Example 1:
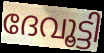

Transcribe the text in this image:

ദേവൂട്ടി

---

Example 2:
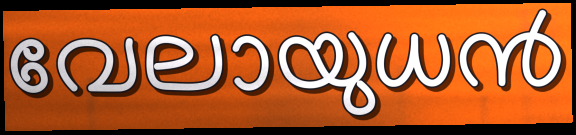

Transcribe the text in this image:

വേലായുധൻ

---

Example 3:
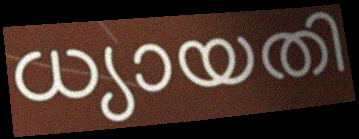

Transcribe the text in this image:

ധ്യായതി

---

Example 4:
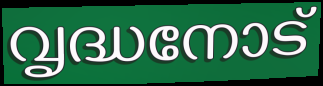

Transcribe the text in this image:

വൃദ്ധനോട്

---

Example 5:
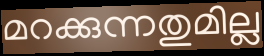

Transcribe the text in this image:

മറക്കുന്നതുമില്ല